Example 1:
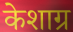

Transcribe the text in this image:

केशाग्र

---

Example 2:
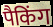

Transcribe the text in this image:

पैकिंग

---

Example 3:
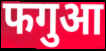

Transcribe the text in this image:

फगुआ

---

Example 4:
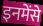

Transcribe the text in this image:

इनमेंसे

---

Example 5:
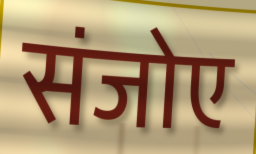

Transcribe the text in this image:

संजोए